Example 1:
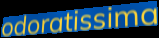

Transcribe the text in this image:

odoratissima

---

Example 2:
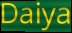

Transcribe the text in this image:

Daiya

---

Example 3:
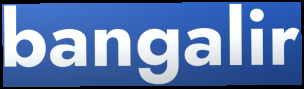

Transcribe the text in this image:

bangalir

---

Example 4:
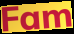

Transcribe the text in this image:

Fam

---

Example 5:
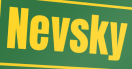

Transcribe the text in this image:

Nevsky